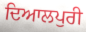
ਦਿਆਲਪੁਰੀ